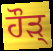
ਹੌੜ੍